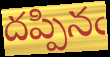
దప్పినఁ